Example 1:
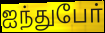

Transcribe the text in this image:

ஐந்துபேர்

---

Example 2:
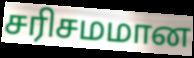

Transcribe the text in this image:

சரிசமமான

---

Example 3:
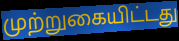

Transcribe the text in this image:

முற்றுகையிட்டது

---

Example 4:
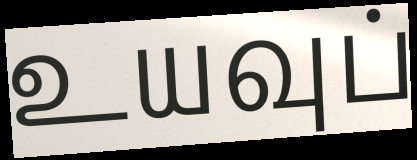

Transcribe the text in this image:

உயவுப்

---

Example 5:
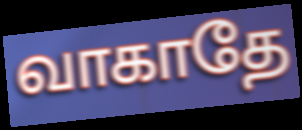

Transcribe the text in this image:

வாகாதே